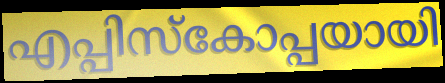
എപ്പിസ്കോപ്പയായി